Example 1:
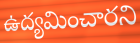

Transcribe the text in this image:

ఉద్యమించారని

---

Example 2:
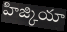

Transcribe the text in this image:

హిజ్కియా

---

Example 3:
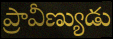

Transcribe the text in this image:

ప్రావీణ్యుడు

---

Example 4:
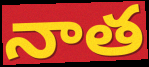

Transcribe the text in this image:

నాత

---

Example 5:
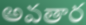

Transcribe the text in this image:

అవతార